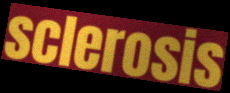
sclerosis